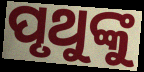
ପୃଥୁଙ୍କୁ